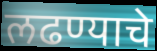
लढण्याचे